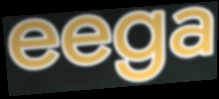
eega